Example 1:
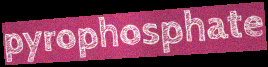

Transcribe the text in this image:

pyrophosphate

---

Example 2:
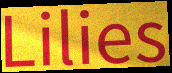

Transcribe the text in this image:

Lilies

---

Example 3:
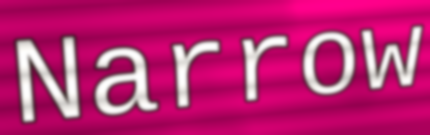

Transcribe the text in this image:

Narrow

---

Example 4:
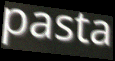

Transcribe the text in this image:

pasta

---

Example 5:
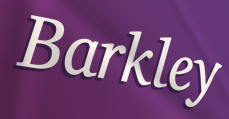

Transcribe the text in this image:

Barkley